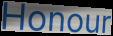
Honour